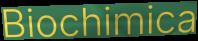
Biochimica